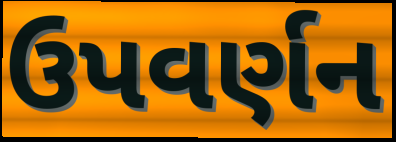
ઉપવર્ણન